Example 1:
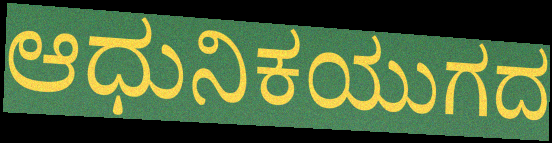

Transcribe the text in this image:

ಆಧುನಿಕಯುಗದ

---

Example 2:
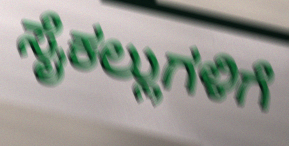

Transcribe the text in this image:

ಸೈಕಲ್ಲುಗಳಿಗೆ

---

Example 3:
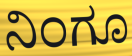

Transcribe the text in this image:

ನಿಂಗೂ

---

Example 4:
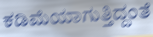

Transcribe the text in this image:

ಕಡಿಮೆಯಾಗುತ್ತಿದ್ದಂತೆ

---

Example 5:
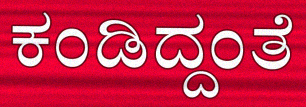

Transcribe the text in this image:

ಕಂಡಿದ್ದಂತೆ